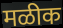
मळीक